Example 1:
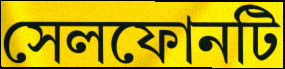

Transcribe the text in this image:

সেলফোনটি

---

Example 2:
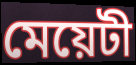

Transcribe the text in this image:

মেয়েটী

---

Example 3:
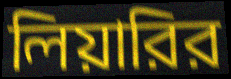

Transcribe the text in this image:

লিয়ারির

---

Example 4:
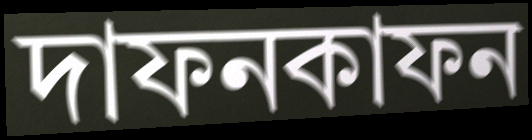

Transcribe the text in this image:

দাফনকাফন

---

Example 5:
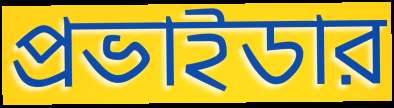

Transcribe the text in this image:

প্রভাইডার